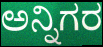
ಅನ್ನಿಗರ